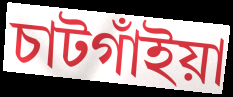
চাটগাঁইয়া